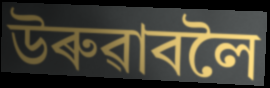
উৰুৱাবলৈ